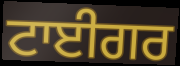
ਟਾਈਗਰ